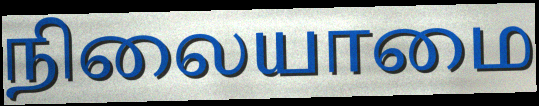
நிலையாமை